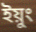
ইয়ুং